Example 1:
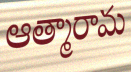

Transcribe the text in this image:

ఆత్మారామ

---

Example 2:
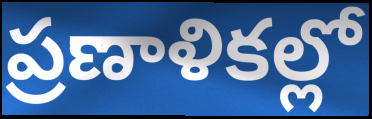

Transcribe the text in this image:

ప్రణాళికల్లో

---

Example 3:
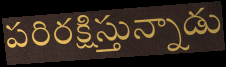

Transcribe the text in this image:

పరిరక్షిస్తున్నాడు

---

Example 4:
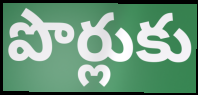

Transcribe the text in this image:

పొర్లుకు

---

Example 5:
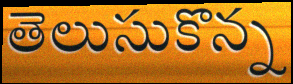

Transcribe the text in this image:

తెలుసుకొన్న